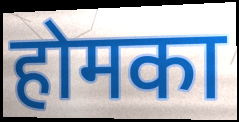
होमका